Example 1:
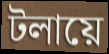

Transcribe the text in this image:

টলায়ে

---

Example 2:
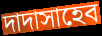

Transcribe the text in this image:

দাদাসাহেব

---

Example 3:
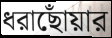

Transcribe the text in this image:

ধরাছোঁয়ার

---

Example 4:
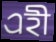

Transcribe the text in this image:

এহী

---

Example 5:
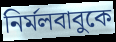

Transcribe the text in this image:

নির্মলবাবুকে